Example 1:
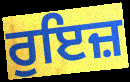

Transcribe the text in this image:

ਰੁਇਜ਼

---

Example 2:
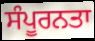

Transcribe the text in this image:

ਸੰਪੂਰਨਤਾ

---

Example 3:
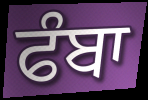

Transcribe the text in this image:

ਫੰਬਾ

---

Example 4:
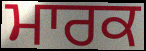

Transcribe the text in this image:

ਮਾਰਕ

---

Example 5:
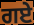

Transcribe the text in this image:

ਗਏ